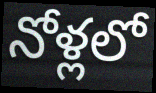
నోళ్లలో